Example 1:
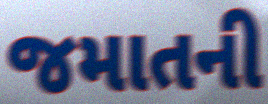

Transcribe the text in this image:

જમાતની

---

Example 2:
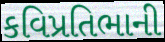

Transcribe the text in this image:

કવિપ્રતિભાની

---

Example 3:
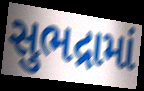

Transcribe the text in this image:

સુભદ્રામાં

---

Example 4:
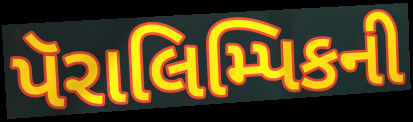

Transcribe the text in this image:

પૅરાલિમ્પિકની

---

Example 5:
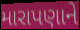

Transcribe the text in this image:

મારાપણાને